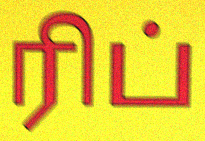
ரிப்